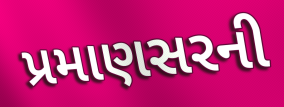
પ્રમાણસરની